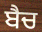
ਬੈਚ